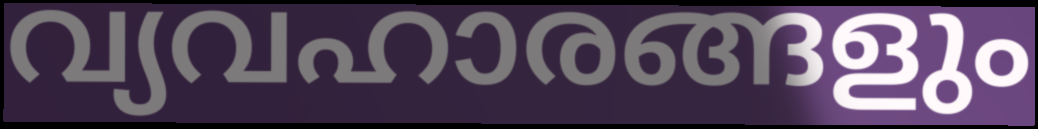
വ്യവഹാരങ്ങളും